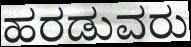
ಹರಡುವರು